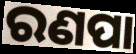
ରଣପା